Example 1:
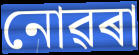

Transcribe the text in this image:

নোৱৰা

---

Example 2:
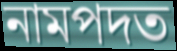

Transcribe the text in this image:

নামপদত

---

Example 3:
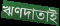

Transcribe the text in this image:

ঋণদাতাই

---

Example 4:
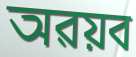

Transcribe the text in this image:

অৱয়ব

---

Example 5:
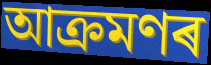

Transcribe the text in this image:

আক্ৰমণৰ